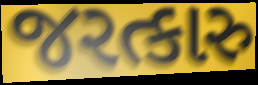
જરત્કારુ